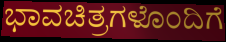
ಭಾವಚಿತ್ರಗಳೊಂದಿಗೆ